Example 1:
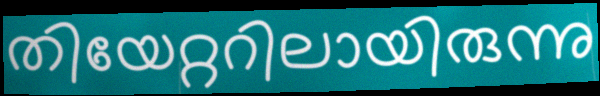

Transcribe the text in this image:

തിയേറ്ററിലായിരുന്നു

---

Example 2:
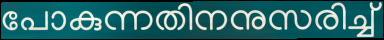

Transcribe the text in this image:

പോകുന്നതിനനുസരിച്ച്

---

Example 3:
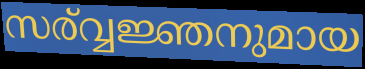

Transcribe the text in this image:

സര്വ്വജ്ഞനുമായ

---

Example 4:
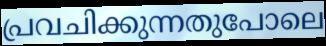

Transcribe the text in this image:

പ്രവചിക്കുന്നതുപോലെ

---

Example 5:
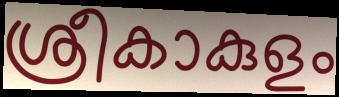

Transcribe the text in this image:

ശ്രീകാകുളം